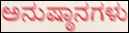
ಅನುಷ್ಠಾನಗಳು